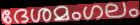
ദേശമംഗലം